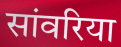
सांवरिया